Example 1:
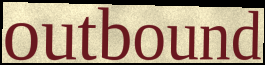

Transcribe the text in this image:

outbound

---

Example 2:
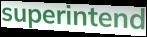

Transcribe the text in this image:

superintend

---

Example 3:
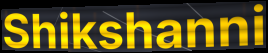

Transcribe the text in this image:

Shikshanni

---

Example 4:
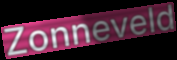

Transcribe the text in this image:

Zonneveld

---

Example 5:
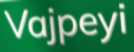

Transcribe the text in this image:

Vajpeyi